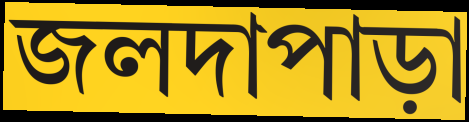
জলদাপাড়া